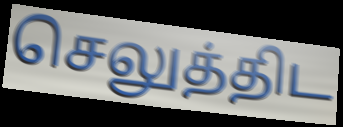
செலுத்திட